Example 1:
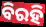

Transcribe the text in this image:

ବିରହି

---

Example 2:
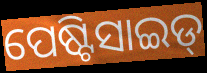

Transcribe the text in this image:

ପେଷ୍ଟିସାଇଡ୍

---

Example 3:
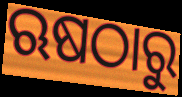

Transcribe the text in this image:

ଋଷଠାରୁ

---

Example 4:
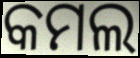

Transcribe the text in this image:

କମଲ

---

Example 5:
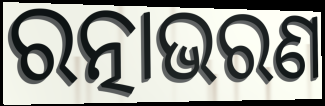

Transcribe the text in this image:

ରତ୍ନାଭରଣ